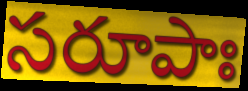
సరూపాః